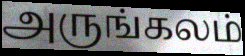
அருங்கலம்